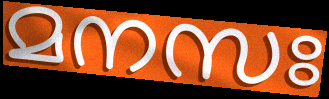
മനസഃ